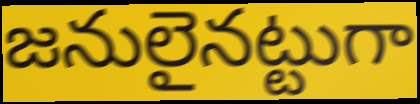
జనులైనట్టుగా